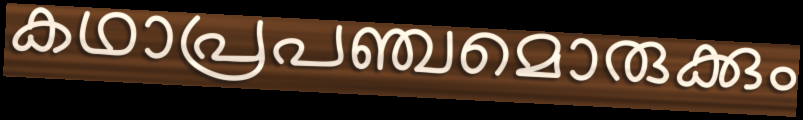
കഥാപ്രപഞ്ചമൊരുക്കും